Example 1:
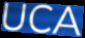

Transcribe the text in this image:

UCA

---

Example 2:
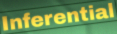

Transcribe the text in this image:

Inferential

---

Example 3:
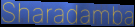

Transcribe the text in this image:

Sharadamba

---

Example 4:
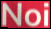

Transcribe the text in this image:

Noi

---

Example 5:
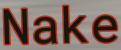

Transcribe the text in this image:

Nake